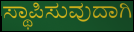
ಸ್ಥಾಪಿಸುವುದಾಗಿ